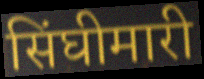
सिंघीमारी